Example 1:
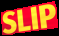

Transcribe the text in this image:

SLIP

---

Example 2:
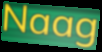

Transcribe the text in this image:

Naag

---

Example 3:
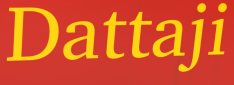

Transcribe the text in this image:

Dattaji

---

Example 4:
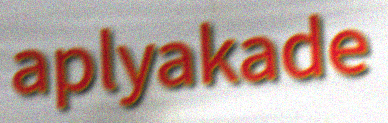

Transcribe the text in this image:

aplyakade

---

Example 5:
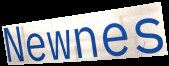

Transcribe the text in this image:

Newnes